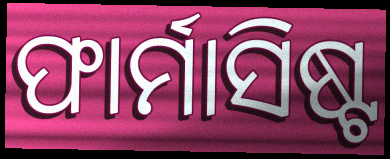
ଫାର୍ମାସିଷ୍ଟ